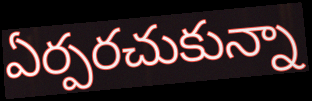
ఏర్పరచుకున్నా